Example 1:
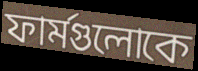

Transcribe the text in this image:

ফার্মগুলোকে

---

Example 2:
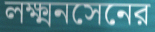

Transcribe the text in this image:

লক্ষ্মনসেনের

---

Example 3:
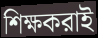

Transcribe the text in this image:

শিক্ষকরাই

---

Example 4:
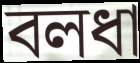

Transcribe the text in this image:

বলধা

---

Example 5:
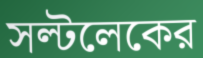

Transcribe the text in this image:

সল্টলেকের